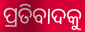
ପ୍ରତିବାଦକୁ